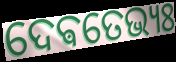
ଦେଵତେଭ୍ୟଃ